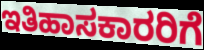
ಇತಿಹಾಸಕಾರರಿಗೆ